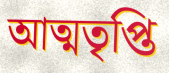
আত্মতৃপ্তি